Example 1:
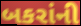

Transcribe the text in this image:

બકરાંની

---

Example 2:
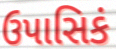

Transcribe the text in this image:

ઉપાસિકં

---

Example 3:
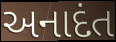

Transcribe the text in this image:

અનાદંત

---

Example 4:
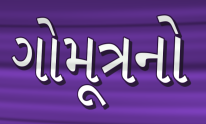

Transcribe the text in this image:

ગોમૂત્રનો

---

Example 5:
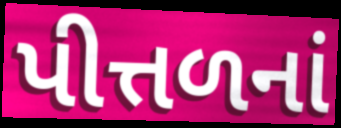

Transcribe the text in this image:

પીત્તળનાં